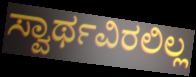
ಸ್ವಾರ್ಥವಿರಲಿಲ್ಲ